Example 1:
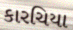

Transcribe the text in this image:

કારચિયા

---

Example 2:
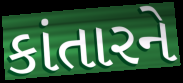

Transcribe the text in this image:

કાંતારને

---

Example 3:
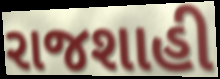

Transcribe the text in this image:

રાજશાહી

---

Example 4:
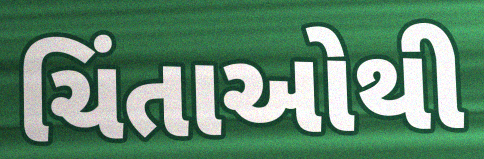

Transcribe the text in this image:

ચિંતાઓથી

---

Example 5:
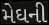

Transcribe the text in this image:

મેઘની